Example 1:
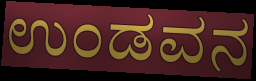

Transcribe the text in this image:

ಉಂಡವನ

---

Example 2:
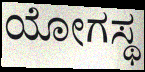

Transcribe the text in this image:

ಯೋಗಸ್ಥ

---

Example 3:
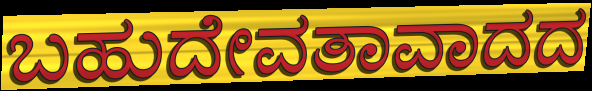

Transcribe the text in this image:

ಬಹುದೇವತಾವಾದದ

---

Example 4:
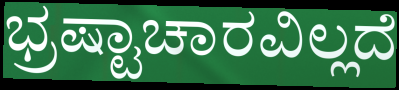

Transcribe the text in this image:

ಭ್ರಷ್ಟಾಚಾರವಿಲ್ಲದೆ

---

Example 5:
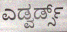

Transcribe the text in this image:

ಎಡ್ವರ್ಡ್ಸ್